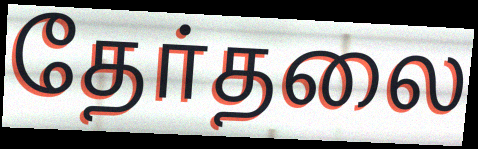
தேர்தலை